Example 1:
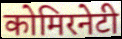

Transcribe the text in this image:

कोमिरनेटी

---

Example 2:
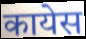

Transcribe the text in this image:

कायेस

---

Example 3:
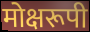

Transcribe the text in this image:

मोक्षरूपी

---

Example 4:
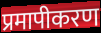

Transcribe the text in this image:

प्रमापीकरण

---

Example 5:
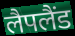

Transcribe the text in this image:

लैपलैंड